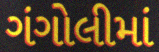
ગંગોલીમાં